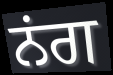
ਨਂਗ